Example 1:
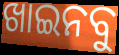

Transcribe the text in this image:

ଖାଇନବୁ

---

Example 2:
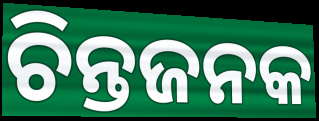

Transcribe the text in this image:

ଚିନ୍ତଜନକ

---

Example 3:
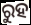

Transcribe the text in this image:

ରୁହ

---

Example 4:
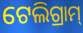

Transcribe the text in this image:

ଟେଲିଗ୍ରାମ୍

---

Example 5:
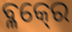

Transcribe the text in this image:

ବ୍ଳକ୍‍ରେ